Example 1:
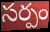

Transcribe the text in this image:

సర్పం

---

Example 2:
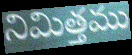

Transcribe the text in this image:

నిమిత్తము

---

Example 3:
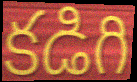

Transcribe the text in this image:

కడిగి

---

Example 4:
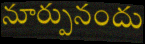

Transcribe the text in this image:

నూర్పునందు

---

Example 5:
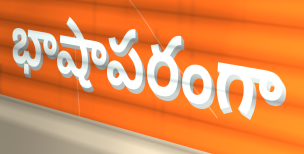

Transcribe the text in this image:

భాషాపరంగా